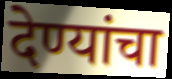
देण्यांचा